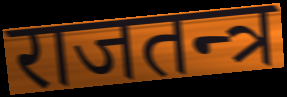
राजतन्त्र